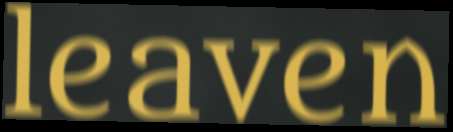
leaven